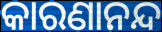
କାରଣାନନ୍ଦ